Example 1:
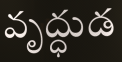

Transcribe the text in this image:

వృద్ధుడ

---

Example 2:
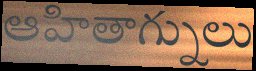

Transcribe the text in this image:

ఆహితాగ్నులు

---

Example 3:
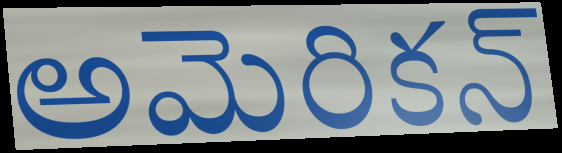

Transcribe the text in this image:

అమెరికన్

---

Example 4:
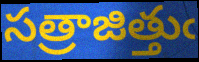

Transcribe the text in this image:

సత్రాజిత్తుఁ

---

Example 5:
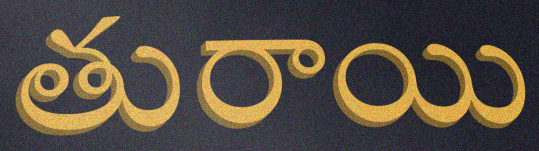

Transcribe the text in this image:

తురాయి